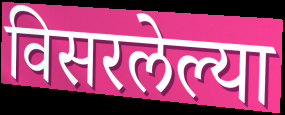
विसरलेल्या